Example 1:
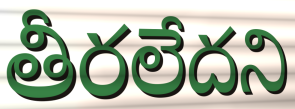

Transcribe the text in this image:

తీరలేదని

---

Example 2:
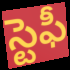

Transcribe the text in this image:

స్టెఫీ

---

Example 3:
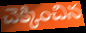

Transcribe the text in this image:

చెక్కించిన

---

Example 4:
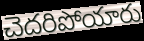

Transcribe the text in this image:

చెదరిపోయారు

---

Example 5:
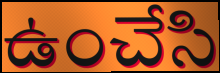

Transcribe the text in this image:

ఉంచేసి